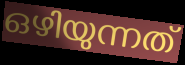
ഒഴിയുന്നത്